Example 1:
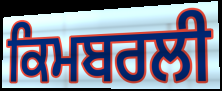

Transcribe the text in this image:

ਕਿਮਬਰਲੀ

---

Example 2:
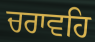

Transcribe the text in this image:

ਚਰਾਵਹਿ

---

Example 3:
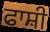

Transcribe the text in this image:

ਫਾਸ਼ੀ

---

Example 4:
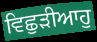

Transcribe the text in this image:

ਵਿਛੁੜੀਆਹੁ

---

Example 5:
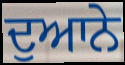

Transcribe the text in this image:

ਦੁਆਨੇ